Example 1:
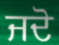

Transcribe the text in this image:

ਜਦੋ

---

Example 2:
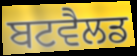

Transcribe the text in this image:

ਬਟਵੈਲਡ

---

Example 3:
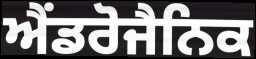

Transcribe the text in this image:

ਐਂਡਰੋਜੈਨਿਕ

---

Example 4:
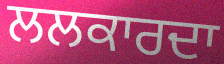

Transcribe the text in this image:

ਲਲਕਾਰਦਾ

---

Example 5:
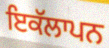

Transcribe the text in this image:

ਇਕੱਲਾਪਨ